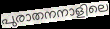
പുരാതനനാളിലെ